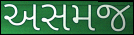
અસમજ